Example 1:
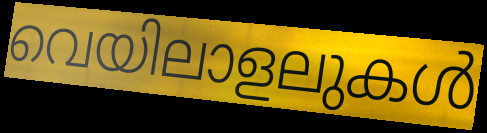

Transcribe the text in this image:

വെയിലാളലുകൾ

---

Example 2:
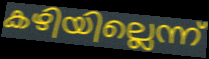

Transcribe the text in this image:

കഴിയില്ലെന്ന്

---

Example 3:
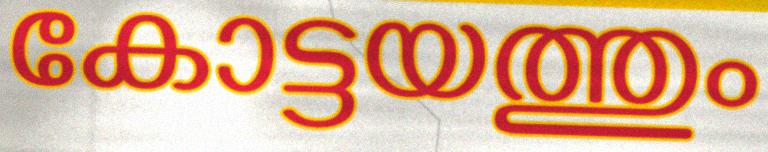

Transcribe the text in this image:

കോട്ടയത്തും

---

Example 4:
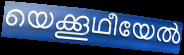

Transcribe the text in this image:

യെക്കൂഥീയേൽ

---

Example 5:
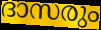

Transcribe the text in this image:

ദാസരും